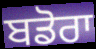
ਬਡੋਰਾ